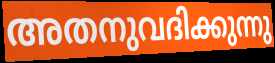
അതനുവദിക്കുന്നു